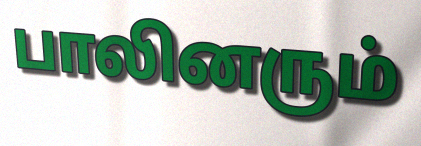
பாலினரும்